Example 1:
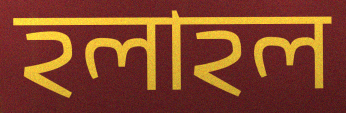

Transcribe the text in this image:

হলাহল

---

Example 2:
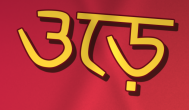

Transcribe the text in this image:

ওড়ে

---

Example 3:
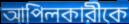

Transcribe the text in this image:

আপিলকারীকে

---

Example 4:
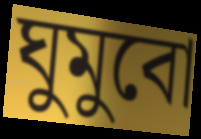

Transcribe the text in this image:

ঘুমুবো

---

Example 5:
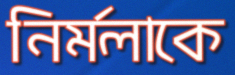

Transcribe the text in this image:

নির্মলাকে